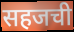
सहजची